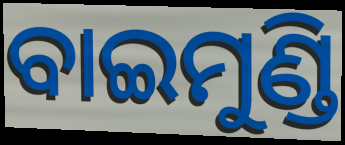
ବାଇମୁଣ୍ଡି